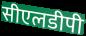
सीएलडीपी